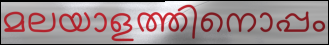
മലയാളത്തിനൊപ്പം